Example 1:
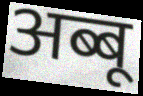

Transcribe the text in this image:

अब्बू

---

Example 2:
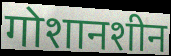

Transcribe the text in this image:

गोशानशीन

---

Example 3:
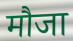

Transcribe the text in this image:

मौजा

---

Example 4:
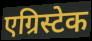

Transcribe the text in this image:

एग्रिस्टेक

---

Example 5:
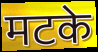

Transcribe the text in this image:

मटके